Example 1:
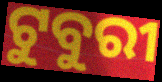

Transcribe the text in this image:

ଟୁବୁରୀ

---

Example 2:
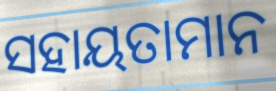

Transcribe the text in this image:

ସହାୟତାମାନ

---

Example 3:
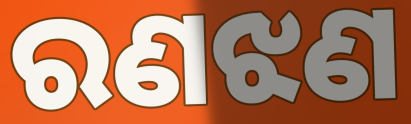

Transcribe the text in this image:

ରଣଝଣ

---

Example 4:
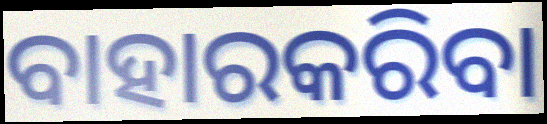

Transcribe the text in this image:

ବାହାରକରିବା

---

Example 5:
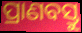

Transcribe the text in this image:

ପ୍ରାଣବସ୍ତୁ